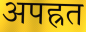
अपह्रत